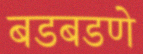
बडबडणे